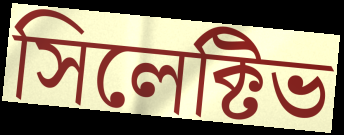
সিলেক্টিভ